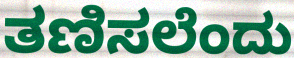
ತಣಿಸಲೆಂದು